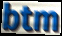
btm